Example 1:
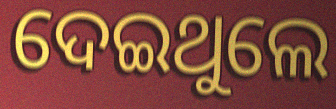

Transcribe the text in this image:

ଦେଇଥୁଲେ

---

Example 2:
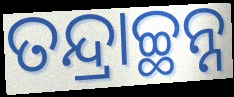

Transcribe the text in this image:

ତନ୍ଦ୍ରାଚ୍ଛନ୍ନ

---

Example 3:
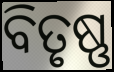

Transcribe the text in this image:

ବିତୃଷ୍ଣ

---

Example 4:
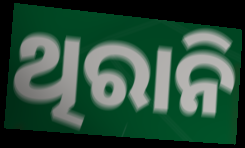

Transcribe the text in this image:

ଥିରାନି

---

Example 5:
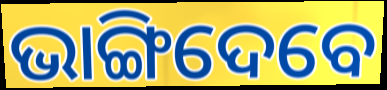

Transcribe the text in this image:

ଭାଙ୍ଗିଦେବେ